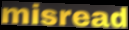
misread